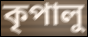
কৃপালু